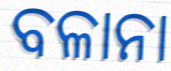
ବଳାନା